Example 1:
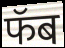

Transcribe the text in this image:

फॅब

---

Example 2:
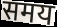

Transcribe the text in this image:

समय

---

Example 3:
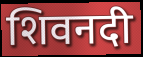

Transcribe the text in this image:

शिवनदी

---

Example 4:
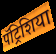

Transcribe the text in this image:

पॅट्रिशिया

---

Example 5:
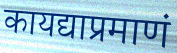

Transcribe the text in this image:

कायद्याप्रमाणं